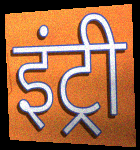
इंट्री